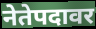
नेतेपदावर